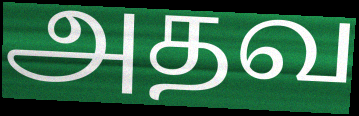
அதவ